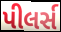
પીલર્સ